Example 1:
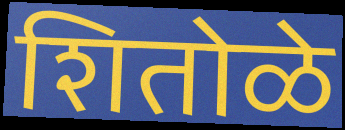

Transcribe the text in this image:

शितोळे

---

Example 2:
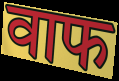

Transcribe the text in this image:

वाफ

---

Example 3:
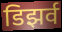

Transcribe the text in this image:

डिझर्व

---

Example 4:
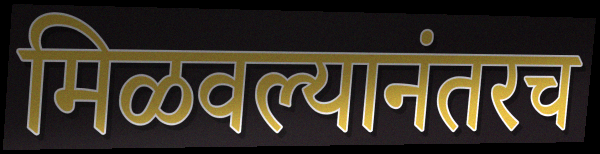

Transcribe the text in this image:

मिळवल्यानंतरच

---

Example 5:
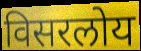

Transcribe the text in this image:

विसरलोय